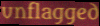
unflagged